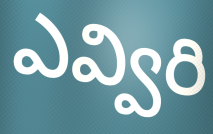
ఎవ్విరి